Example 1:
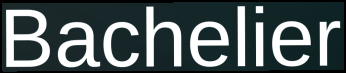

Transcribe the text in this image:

Bachelier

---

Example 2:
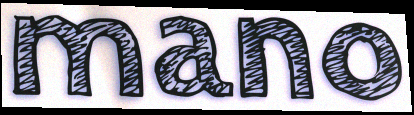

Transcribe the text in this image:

mano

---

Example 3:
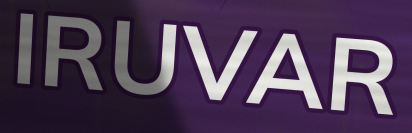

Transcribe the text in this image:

IRUVAR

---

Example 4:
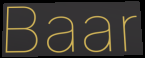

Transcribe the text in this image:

Baar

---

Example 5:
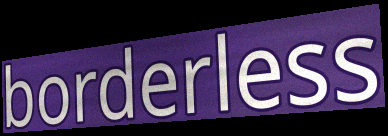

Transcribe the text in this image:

borderless